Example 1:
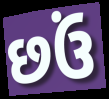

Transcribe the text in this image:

છઉં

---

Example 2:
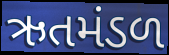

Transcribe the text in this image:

ઋતમંડળ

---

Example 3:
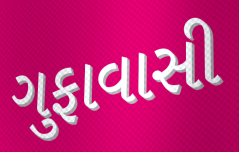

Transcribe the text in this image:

ગુફાવાસી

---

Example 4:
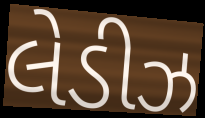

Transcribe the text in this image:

લેડીઝ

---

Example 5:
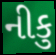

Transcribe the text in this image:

નીકુ